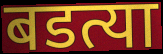
बडत्या